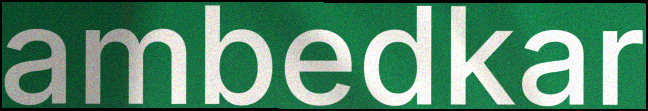
ambedkar